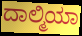
ದಾಲ್ಮಿಯಾ